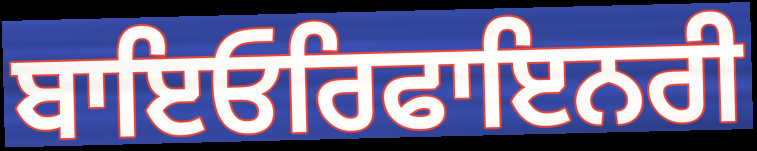
ਬਾਇਓਰਿਫਾਇਨਰੀ